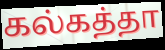
கல்கத்தா